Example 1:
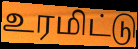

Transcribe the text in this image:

உரமிட்டு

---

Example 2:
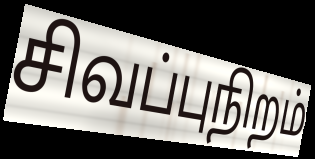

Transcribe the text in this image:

சிவப்புநிறம்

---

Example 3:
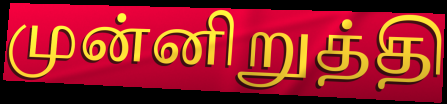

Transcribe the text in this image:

முன்னிறுத்தி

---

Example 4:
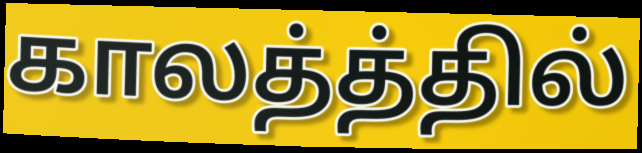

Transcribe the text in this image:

காலத்த்தில்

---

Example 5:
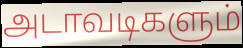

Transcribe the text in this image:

அடாவடிகளும்